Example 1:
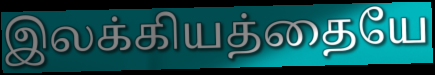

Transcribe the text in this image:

இலக்கியத்தையே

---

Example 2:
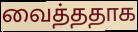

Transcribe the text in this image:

வைத்ததாக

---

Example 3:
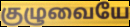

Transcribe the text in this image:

குழுவையே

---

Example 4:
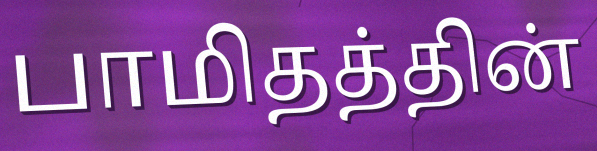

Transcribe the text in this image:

பாமிதத்தின்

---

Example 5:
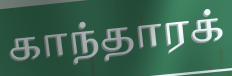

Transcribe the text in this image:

காந்தாரக்